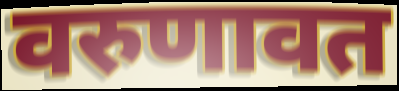
वरुणावत